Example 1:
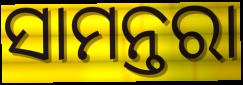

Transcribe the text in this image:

ସାମନ୍ତରା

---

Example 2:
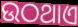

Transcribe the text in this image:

ଉଠଥାଏ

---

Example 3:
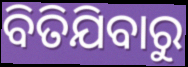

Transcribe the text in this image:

ବିତିଯିବାରୁ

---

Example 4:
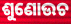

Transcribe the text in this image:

ଶୁଣୋଉଚ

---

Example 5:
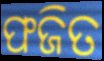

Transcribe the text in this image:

ଫଜିତ